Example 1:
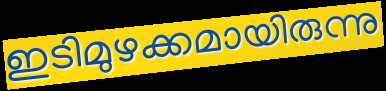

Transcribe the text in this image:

ഇടിമുഴക്കമായിരുന്നു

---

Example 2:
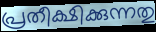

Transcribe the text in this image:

പ്രതീക്ഷിക്കുന്നതു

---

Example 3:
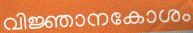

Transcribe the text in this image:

വിജ്ഞാനകോശം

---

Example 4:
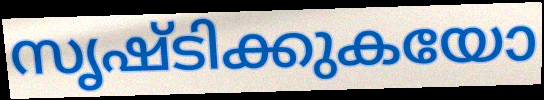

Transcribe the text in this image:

സൃഷ്ടിക്കുകയോ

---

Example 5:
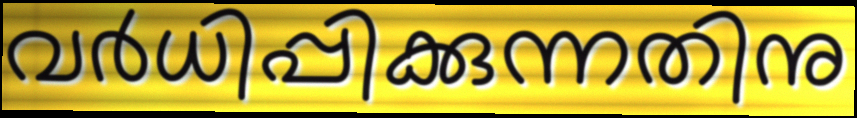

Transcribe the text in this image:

വർധിപ്പിക്കുന്നതിനു